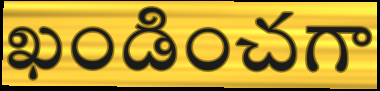
ఖండించగా